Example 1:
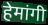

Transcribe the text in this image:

हेमांगी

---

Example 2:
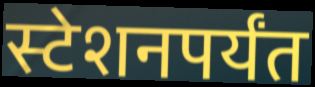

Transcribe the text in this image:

स्टेशनपर्यंत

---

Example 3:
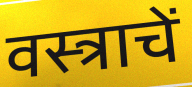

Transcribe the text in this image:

वस्त्राचें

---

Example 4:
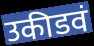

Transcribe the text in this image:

उकीडवं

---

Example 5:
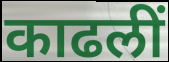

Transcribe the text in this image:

काढलीं